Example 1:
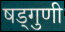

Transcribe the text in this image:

षड्गुणी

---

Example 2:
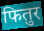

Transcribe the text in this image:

फितुर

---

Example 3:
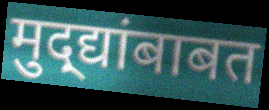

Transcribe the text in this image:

मुद्द्यांबाबत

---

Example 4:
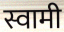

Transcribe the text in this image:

स्वामी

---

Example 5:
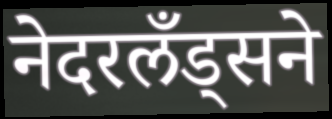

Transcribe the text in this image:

नेदरलँड्सने